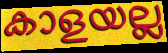
കാളയല്ല